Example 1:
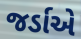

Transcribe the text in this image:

જર્ડાએ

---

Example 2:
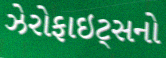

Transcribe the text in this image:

ઝેરોફાઇટ્સનો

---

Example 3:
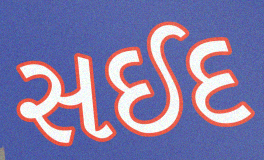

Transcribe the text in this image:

સઈદ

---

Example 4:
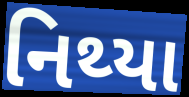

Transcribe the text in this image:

નિથ્યા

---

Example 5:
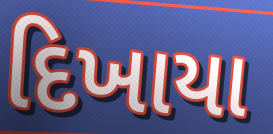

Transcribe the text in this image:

દિખાયા